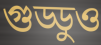
গুড্ডুও